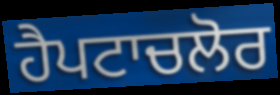
ਹੈਪਟਾਚਲੋਰ